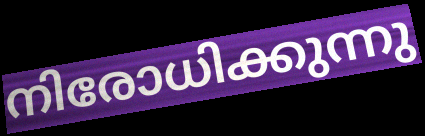
നിരോധിക്കുന്നു